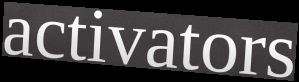
activators